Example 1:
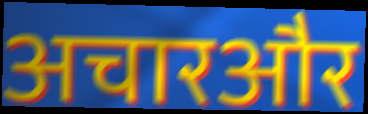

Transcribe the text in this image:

अचारऔर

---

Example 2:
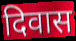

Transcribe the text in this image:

दिवास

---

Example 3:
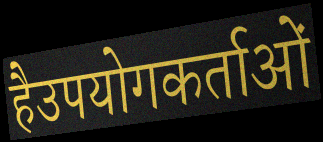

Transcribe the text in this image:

हैउपयोगकर्ताओं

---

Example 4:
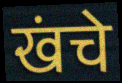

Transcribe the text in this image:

खंचे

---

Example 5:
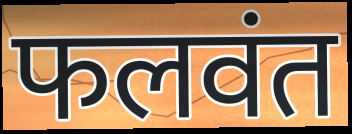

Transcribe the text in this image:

फलवंत